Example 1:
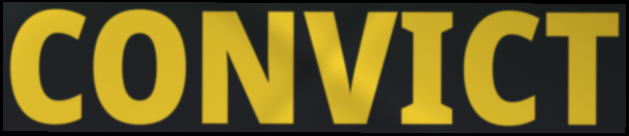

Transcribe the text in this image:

CONVICT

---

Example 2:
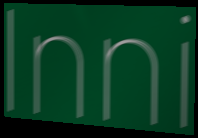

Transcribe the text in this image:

Inni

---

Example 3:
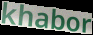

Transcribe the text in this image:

khabor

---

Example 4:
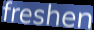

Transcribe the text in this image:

freshen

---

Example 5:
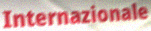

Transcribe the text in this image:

Internazionale